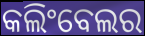
କଲିଂବେଲର